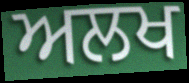
ਅਲਖ